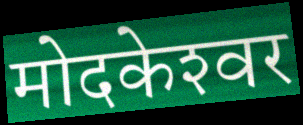
मोदकेश्वर